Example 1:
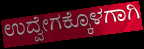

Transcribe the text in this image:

ಉದ್ವೇಗಕ್ಕೊಳಗಾಗಿ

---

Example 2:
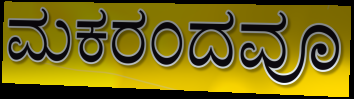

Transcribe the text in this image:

ಮಕರಂದವೂ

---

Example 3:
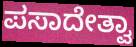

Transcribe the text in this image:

ಪಸಾದೇತ್ವಾ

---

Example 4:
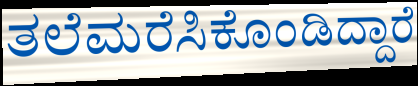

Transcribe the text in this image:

ತಲೆಮರೆಸಿಕೊಂಡಿದ್ದಾರೆ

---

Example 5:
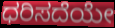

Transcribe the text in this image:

ಧರಿಸದೆಯೇ